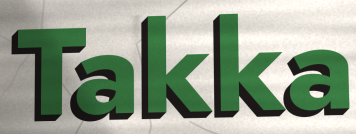
Takka